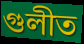
গুলীত